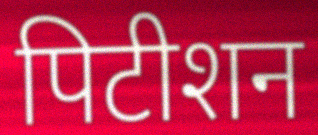
पिटीशन